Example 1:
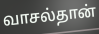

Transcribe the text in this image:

வாசல்தான்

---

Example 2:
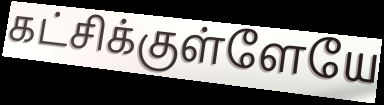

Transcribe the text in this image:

கட்சிக்குள்ளேயே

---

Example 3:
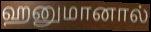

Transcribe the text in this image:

ஹனுமானால்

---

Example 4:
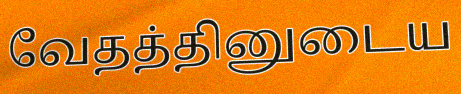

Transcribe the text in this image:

வேதத்தினுடைய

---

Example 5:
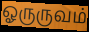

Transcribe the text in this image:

ஓருருவம்